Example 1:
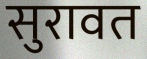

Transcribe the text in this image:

सुरावत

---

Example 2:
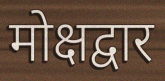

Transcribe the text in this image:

मोक्षद्वार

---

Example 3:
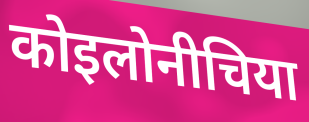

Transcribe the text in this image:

कोइलोनीचिया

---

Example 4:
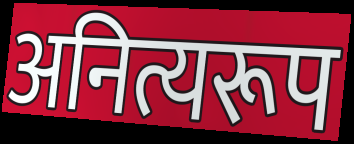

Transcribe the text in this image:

अनित्यरूप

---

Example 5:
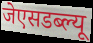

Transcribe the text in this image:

जेएसडब्ल्यू